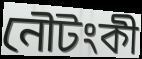
নৌটংকী